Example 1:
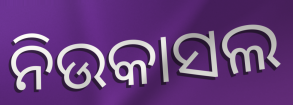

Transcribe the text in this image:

ନିଉକାସଲ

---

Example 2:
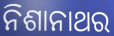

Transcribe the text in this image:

ନିଶାନାଥର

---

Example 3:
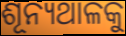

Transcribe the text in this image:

ଶୂନ୍ୟଥାଳକୁ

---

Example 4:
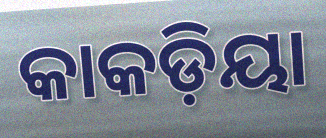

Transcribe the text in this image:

କାକଡ଼ିୟା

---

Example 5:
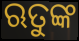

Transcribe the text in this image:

ଋତୁଙ୍କ